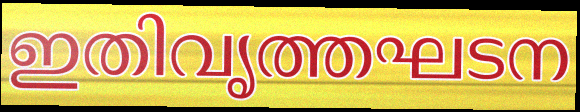
ഇതിവൃത്തഘടന